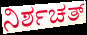
ನಿರ್ಶಚತ್